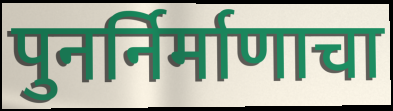
पुनर्निर्माणाचा